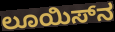
ಲೂಯಿಸ್‌ನ